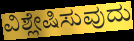
ವಿಶ್ಲೇಷಿಸುವುದು